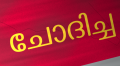
ചോദിച്ച